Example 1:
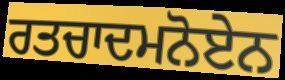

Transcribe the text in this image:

ਰਤਚਾਦਮਨੋਏਨ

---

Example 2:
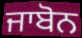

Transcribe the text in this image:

ਜਾਬੋਨ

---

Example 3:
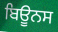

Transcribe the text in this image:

ਬਿਊਨਸ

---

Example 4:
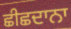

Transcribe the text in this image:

ਛੀਛਦਾਨਾ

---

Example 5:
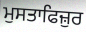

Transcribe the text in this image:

ਮੁਸਤਾਫਿਜ਼ੁਰ